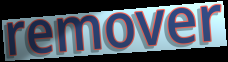
remover